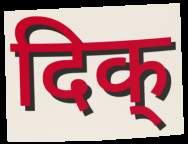
दिक्